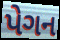
પેગન